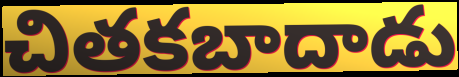
చితకబాదాడు